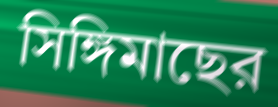
সিঙ্গিমাছের